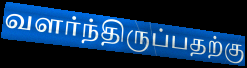
வளர்ந்திருப்பதற்கு